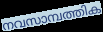
നവസാമ്പത്തിക